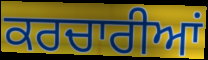
ਕਰਚਾਰੀਆਂ